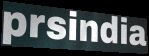
prsindia